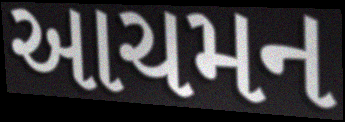
આચમન